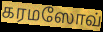
கரமஸோவ்